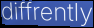
diffrently